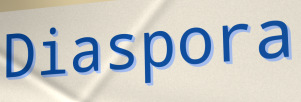
Diaspora